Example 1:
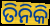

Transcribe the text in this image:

ତିନିକି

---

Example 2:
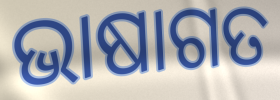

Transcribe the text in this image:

ଭାଷାଗତ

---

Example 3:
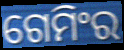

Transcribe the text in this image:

ଗେମିଂର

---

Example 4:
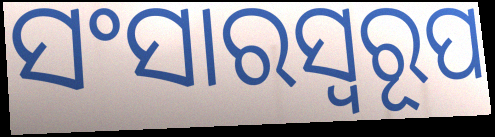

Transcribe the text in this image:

ସଂସାରସ୍ବରୂପ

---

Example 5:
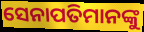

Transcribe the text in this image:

ସେନାପତିମାନଙ୍କୁ